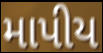
માપીય